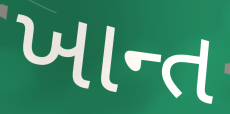
ખાન્ત